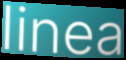
linea